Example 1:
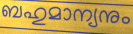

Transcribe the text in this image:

ബഹുമാന്യനും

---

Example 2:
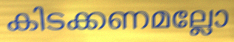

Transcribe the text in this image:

കിടക്കണമല്ലോ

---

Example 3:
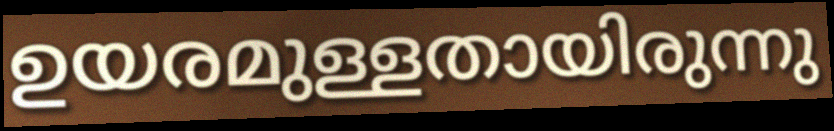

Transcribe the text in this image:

ഉയരമുള്ളതായിരുന്നു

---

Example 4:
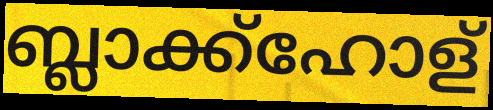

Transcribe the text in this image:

ബ്ലാക്ക്ഹോള്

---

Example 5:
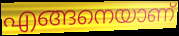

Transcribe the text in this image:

എങ്ങനെയാണ്